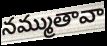
నమ్ముతావా